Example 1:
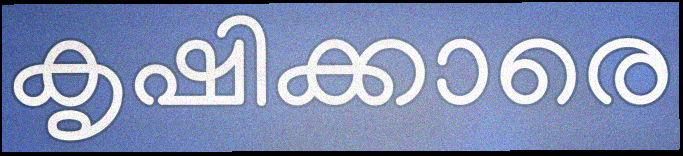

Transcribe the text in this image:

കൃഷിക്കാരെ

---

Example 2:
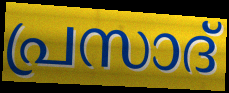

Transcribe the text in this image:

പ്രസാദ്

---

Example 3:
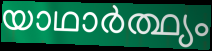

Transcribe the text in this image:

യാഥാർത്ഥ്യം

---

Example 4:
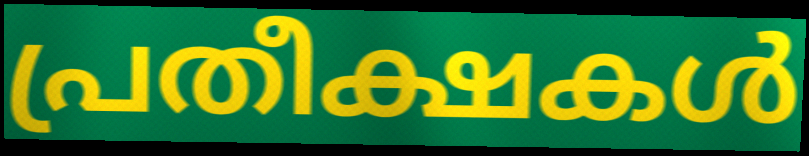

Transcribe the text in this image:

പ്രതീക്ഷകൾ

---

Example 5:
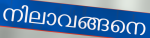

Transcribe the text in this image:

നിലാവങ്ങനെ